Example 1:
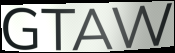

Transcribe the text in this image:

GTAW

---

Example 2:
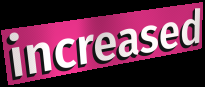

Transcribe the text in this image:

increased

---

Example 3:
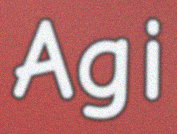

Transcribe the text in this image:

Agi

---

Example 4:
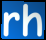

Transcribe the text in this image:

rh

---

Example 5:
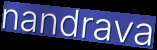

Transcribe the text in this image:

nandrava